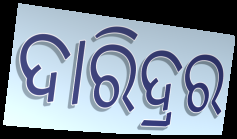
ଦାରିଦ୍ରର